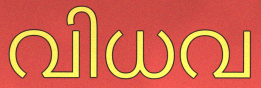
വിധവ